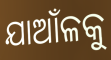
ଯାଆଁଳକୁ